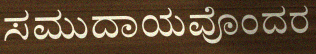
ಸಮುದಾಯವೊಂದರ